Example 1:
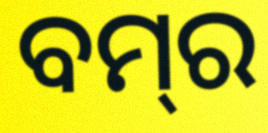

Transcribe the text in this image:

ବମ୍‌ର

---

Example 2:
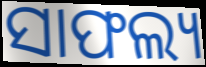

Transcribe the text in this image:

ସାଫଲ୍ଯ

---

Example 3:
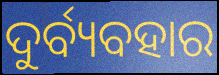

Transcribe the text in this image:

ଦୁର୍ବ୍ୟବହାର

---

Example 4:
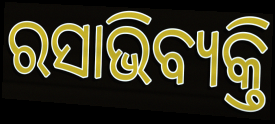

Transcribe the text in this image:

ରସାଭିବ୍ୟକ୍ତି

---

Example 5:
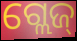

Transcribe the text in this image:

ଗ୍ଲେଜ୍